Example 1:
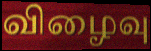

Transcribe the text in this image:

விழைவு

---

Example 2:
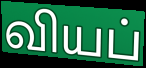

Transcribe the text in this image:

வியப்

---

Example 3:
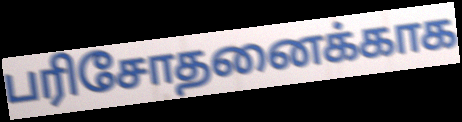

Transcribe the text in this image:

பரிசோதனைக்காக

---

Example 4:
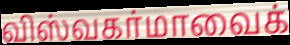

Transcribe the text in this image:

விஸ்வகர்மாவைக்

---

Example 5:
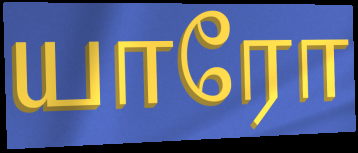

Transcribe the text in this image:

யாரோ